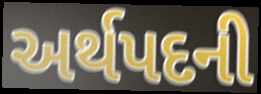
અર્થપદની